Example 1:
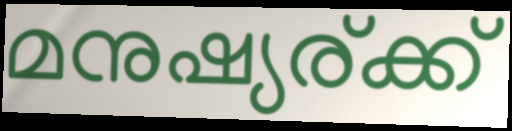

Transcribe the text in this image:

മനുഷ്യര്ക്ക്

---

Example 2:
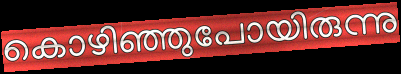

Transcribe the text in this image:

കൊഴിഞ്ഞുപോയിരുന്നു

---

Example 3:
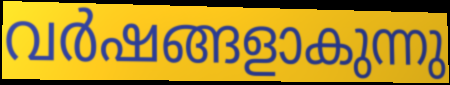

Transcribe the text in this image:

വർഷങ്ങളാകുന്നു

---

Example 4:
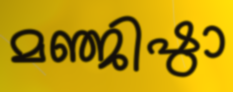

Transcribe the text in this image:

മഞ്ജിഷ്ഠാ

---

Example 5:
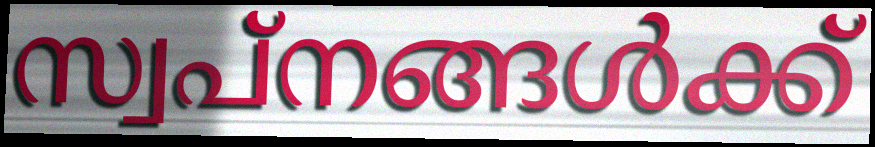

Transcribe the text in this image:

സ്വപ്നങ്ങൾക്ക്